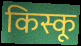
किस्कू